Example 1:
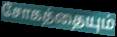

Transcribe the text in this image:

சோகத்தையும்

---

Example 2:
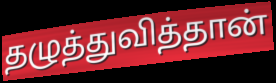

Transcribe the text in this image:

தழுத்துவித்தான்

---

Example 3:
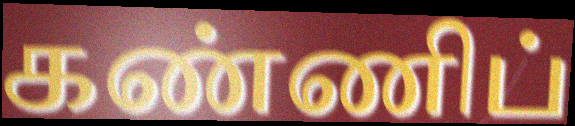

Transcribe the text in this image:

கண்ணிப்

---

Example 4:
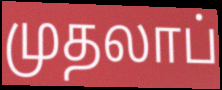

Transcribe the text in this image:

முதலாப்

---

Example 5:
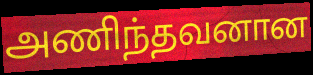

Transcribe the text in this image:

அணிந்தவனான